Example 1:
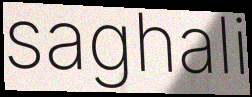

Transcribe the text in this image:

saghali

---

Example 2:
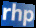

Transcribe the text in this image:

rhp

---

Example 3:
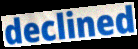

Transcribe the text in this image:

declined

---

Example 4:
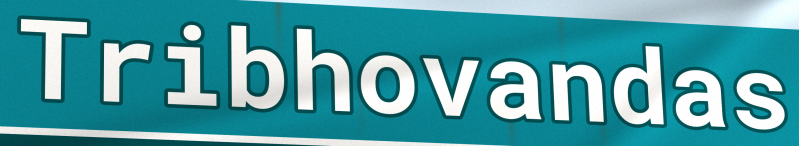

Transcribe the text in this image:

Tribhovandas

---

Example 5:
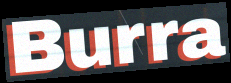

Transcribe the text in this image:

Burra